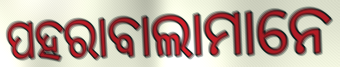
ପହରାବାଲାମାନେ